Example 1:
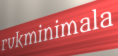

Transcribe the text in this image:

rukminimala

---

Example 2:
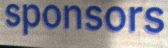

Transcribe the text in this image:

sponsors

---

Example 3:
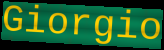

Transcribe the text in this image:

Giorgio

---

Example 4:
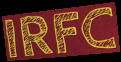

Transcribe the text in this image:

IRFC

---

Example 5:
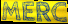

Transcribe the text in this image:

MERC